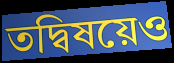
তদ্বিষয়েও